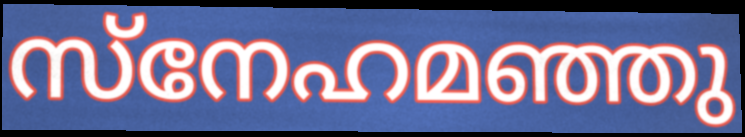
സ്നേഹമഞ്ഞു